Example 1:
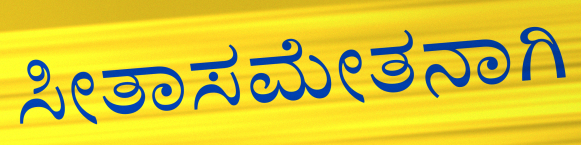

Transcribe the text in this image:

ಸೀತಾಸಮೇತನಾಗಿ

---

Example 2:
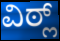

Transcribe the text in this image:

ವಿಠ್ಲ್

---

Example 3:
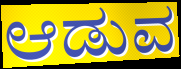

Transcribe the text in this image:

ಆಡುವ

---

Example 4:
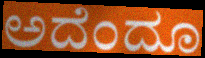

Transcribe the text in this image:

ಅದೆಂದೂ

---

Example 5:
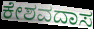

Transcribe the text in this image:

ಕೇಶವದಾಸ